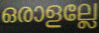
ഒരാളല്ലേ